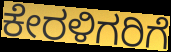
ಕೇರಳಿಗರಿಗೆ